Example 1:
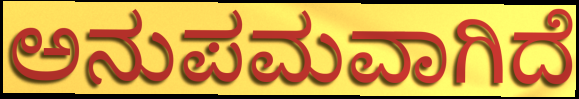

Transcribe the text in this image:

ಅನುಪಮವಾಗಿದೆ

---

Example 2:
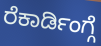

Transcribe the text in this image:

ರೆಕಾರ್ಡಿಂಗ್ಗೆ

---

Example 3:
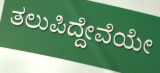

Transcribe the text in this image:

ತಲುಪಿದ್ದೇವೆಯೇ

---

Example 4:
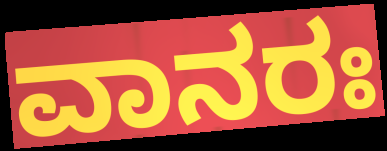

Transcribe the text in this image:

ವಾನರಃ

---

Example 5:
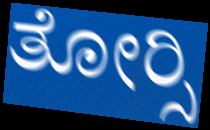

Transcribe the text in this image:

ತೋರ್‍ಸಿ